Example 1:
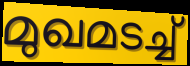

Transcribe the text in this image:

മുഖമടച്ച്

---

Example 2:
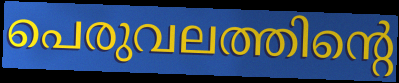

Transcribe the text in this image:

പെരുവലത്തിന്റെ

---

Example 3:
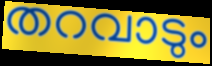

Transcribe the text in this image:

തറവാടും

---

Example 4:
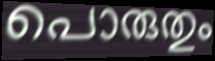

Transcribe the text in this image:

പൊരുതും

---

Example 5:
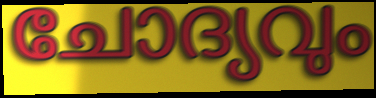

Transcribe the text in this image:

ചോദ്യവും